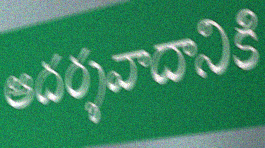
ఆదర్శవాదానికి